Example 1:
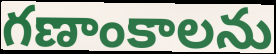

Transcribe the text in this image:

గణాంకాలను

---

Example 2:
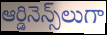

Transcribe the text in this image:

ఆర్డినెన్స్‌లుగా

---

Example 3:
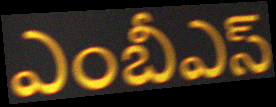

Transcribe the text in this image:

ఎంబీఎస్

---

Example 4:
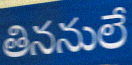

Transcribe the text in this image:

తిననులే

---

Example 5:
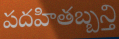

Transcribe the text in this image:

పదహితబ్బన్తి